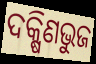
ଦକ୍ଷିଣଭୁଜ